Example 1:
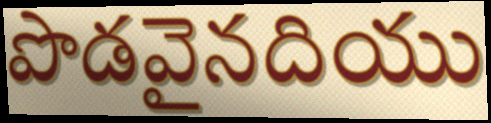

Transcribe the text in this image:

పొడవైనదియు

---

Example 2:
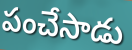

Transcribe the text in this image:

పంచేసాడు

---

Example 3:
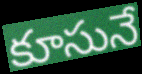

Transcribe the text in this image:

కూసునే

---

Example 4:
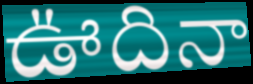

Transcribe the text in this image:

ఊదినా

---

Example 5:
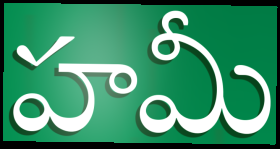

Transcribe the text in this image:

హమీ